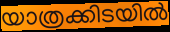
യാത്രക്കിടയിൽ